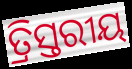
ତ୍ରିସ୍ତରୀୟ